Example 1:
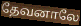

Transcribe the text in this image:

தேவனாலே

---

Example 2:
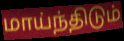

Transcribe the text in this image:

மாய்ந்திடும்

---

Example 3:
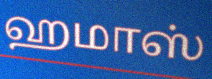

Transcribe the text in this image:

ஹமாஸ்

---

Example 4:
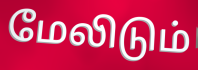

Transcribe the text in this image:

மேலிடும்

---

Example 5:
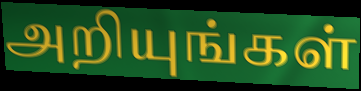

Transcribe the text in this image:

அறியுங்கள்